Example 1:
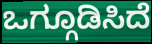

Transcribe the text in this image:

ಒಗ್ಗೂಡಿಸಿದೆ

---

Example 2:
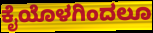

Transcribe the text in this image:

ಕೈಯೊಳಗಿಂದಲೂ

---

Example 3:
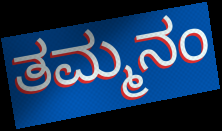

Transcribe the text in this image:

ತಮ್ಮನಂ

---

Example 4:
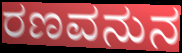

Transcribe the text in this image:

ರಣವನುನ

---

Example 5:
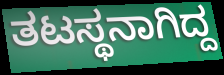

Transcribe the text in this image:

ತಟಸ್ಥನಾಗಿದ್ದ